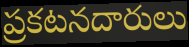
ప్రకటనదారులు